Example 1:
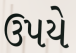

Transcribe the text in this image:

ઉપયે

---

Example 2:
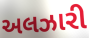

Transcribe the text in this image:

અલઝારી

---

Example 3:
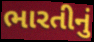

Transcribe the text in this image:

ભારતીનું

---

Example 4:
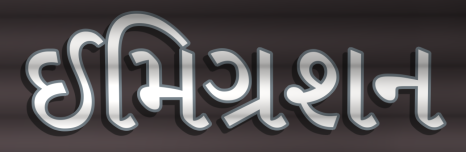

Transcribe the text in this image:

ઈમિગ્રશન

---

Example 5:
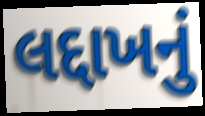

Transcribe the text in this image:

લદ્દાખનું